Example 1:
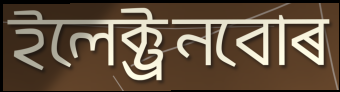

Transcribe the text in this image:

ইলেক্ট্ৰনবোৰ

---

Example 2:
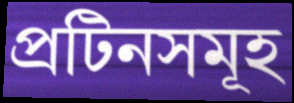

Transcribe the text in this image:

প্ৰটিনসমূহ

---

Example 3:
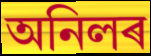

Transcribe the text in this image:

অনিলৰ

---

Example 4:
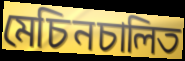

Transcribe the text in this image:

মেচিনচালিত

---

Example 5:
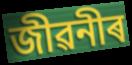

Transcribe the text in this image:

জীৱনীৰ